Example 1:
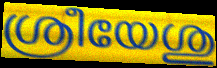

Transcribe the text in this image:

ശ്രീയേശു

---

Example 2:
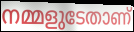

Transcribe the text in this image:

നമ്മളുടേതാണ്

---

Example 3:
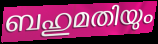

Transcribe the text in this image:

ബഹുമതിയും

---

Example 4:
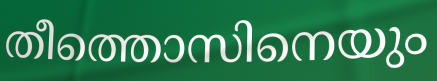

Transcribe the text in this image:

തീത്തൊസിനെയും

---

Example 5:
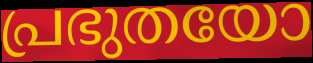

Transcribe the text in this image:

പ്രഭുതയോ